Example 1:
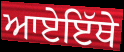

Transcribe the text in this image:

ਆਏਇੱਥੇ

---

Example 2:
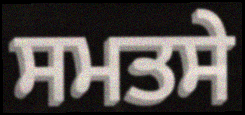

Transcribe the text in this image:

ਸਮਤਸੇ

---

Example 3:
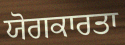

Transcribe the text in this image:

ਯੋਗਕਾਰਤਾ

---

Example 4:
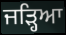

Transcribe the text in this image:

ਜੜ੍ਹਿਆ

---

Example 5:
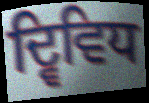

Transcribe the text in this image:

ਦ੍ਵਿਵਿਧ